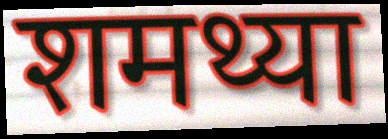
शमथ्या